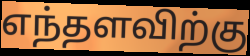
எந்தளவிற்கு